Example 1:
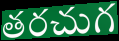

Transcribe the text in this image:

తరచుగ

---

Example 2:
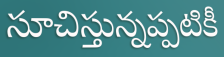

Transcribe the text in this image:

సూచిస్తున్నప్పటికీ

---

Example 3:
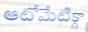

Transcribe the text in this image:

ఆటోమేటిక్గా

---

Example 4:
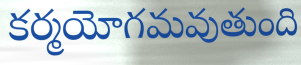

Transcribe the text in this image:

కర్మయోగమవుతుంది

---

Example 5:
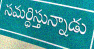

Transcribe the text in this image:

సమర్ధిస్తున్నాడు